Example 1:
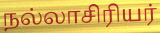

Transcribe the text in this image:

நல்லாசிரியர்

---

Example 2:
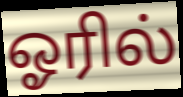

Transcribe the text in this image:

ஓரில்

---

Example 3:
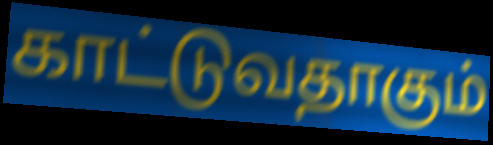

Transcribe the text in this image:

காட்டுவதாகும்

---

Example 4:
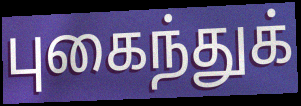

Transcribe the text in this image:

புகைந்துக்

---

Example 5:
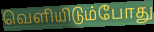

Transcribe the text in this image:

வெளியிடும்போது